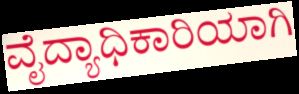
ವೈದ್ಯಾಧಿಕಾರಿಯಾಗಿ